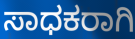
ಸಾಧಕರಾಗಿ